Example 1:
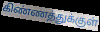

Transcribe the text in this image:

கிண்ணத்துக்குள்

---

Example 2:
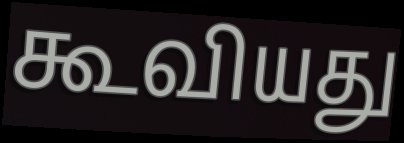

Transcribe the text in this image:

கூவியது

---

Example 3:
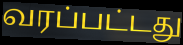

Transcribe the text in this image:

வரப்பட்டது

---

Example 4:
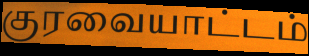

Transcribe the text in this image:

குரவையாட்டம்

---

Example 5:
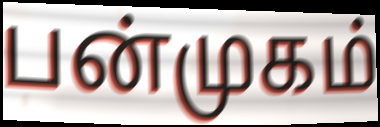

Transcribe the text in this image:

பன்முகம்